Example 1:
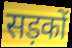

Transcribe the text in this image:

सड़कों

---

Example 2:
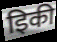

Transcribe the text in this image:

इिकी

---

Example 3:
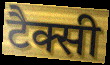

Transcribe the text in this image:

टैक्सी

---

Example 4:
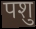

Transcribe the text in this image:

पशु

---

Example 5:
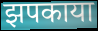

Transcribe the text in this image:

झपकाया